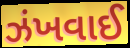
ઝંખવાઈ